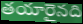
తయారైనది